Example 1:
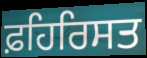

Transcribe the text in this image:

ਫ਼ਹਿਰਿਸਤ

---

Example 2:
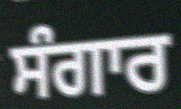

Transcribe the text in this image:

ਸੰਗਾਰ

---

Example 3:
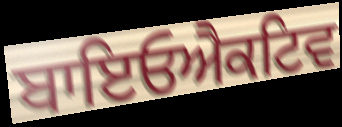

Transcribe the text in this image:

ਬਾਇਓਐਕਟਿਵ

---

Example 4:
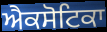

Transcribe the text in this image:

ਐਕਸੋਟਿਕਾ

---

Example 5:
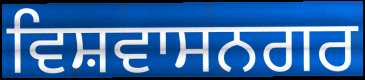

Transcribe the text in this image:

ਵਿਸ਼ਵਾਸਨਗਰ